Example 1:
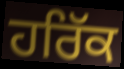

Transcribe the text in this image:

ਹਰਿੱਕ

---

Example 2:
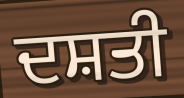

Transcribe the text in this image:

ਦਸ਼ਤੀ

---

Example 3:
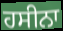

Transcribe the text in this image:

ਹਸੀਨਾ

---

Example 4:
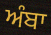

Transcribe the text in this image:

ਅੰਬਾ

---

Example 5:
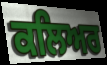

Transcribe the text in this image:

ਕਲਿਅਰ